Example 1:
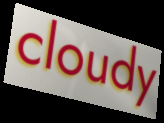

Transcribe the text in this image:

cloudy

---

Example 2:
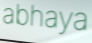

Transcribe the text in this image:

abhaya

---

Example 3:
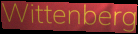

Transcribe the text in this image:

Wittenberg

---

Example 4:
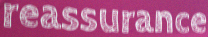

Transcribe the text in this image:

reassurance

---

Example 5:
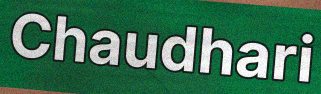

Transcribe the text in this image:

Chaudhari